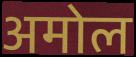
अमोल